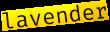
lavender